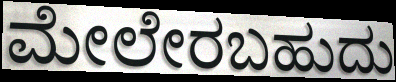
ಮೇಲೇರಬಹುದು